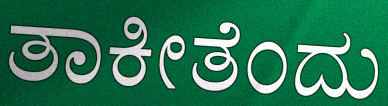
ತಾಕೀತೆಂದು